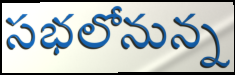
సభలోనున్న